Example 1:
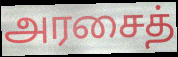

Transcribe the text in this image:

அரசைத்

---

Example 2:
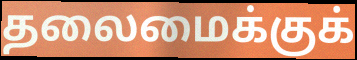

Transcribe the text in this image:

தலைமைக்குக்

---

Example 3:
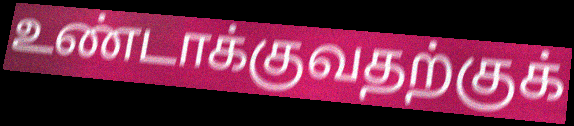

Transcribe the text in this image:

உண்டாக்குவதற்குக்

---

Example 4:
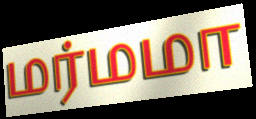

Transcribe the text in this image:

மர்மமா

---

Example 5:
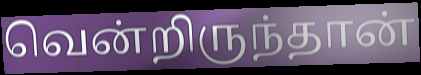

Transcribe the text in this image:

வென்றிருந்தான்